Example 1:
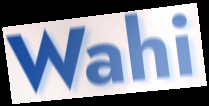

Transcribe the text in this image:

Wahi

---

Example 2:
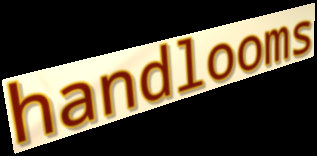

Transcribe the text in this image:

handlooms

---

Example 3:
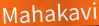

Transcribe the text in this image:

Mahakavi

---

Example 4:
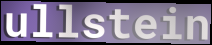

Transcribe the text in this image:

ullstein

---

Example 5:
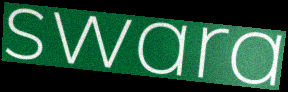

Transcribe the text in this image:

swara